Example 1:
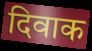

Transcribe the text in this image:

दिवाक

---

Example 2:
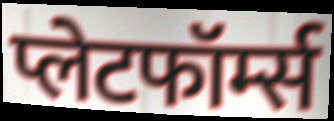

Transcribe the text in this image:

प्लेटफॉर्म्स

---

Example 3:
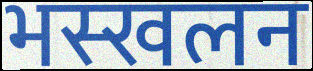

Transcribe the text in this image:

भस्खलन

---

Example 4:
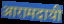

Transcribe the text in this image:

आरामदायी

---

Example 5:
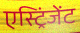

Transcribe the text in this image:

एस्ट्रिंजेंट